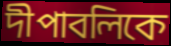
দীপাবলিকে